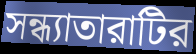
সন্ধ্যাতারাটির